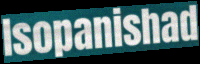
Isopanishad